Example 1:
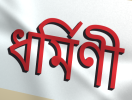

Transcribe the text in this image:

ধর্মিণী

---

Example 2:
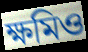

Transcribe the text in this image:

ক্ষমিও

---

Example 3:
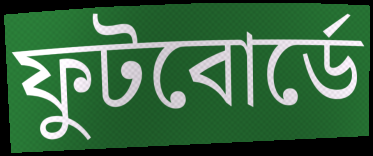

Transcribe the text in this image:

ফুটবোর্ডে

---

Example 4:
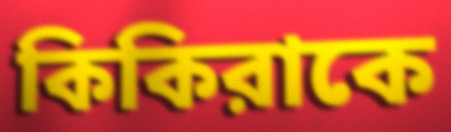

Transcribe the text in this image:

কিকিরাকে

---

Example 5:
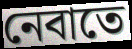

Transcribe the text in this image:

নেবাতে